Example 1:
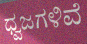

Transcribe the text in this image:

ಧ್ವಜಗಳಿವೆ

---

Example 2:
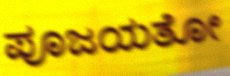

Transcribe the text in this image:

ಪೂಜಯತೋ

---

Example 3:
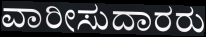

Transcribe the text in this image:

ವಾರೀಸುದಾರರು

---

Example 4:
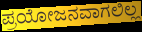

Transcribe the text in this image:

ಪ್ರಯೋಜನವಾಗಲಿಲ್ಲ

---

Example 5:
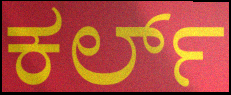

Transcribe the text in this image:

ಕರ್ಲ್